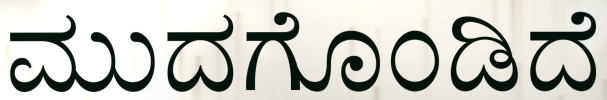
ಮುದಗೊಂಡಿದೆ